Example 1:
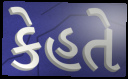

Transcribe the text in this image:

કેહતે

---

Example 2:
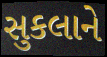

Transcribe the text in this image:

સુકલાને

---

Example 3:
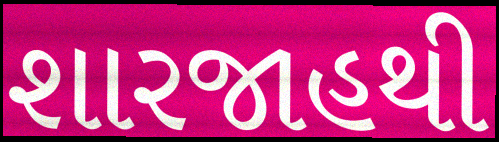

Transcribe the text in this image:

શારજાહથી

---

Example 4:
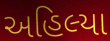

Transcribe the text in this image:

અહિલ્યા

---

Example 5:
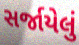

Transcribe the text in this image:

સર્જાયેલું